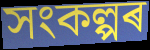
সংকল্পৰ